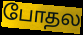
போதல